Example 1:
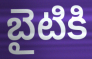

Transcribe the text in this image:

బైటికి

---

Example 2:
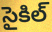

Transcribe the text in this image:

సైకిల్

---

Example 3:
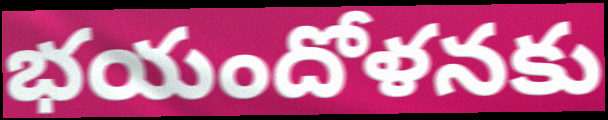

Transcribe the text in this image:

భయందోళనకు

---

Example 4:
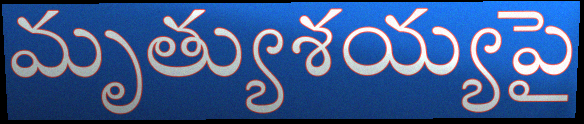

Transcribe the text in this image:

మృత్యుశయ్యపై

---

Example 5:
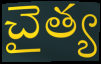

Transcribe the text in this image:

చైత్య